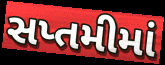
સપ્તમીમાં